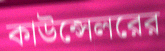
কাউন্সেলরের